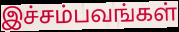
இச்சம்பவங்கள்